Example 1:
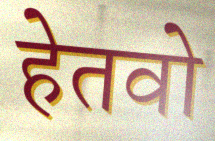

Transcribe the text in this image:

हेतवो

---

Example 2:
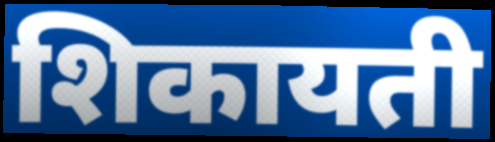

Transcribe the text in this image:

शिकायती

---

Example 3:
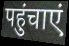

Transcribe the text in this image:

पहुंचाएं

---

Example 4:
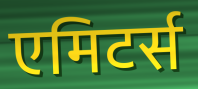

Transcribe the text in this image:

एमिटर्स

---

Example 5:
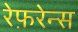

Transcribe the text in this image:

रेफ़रेन्स